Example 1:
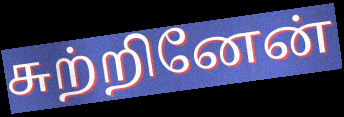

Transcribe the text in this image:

சுற்றினேன்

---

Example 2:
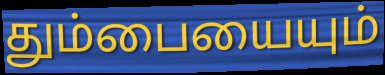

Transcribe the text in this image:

தும்பையையும்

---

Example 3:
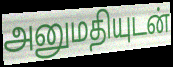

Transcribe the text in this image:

அனுமதியுடன்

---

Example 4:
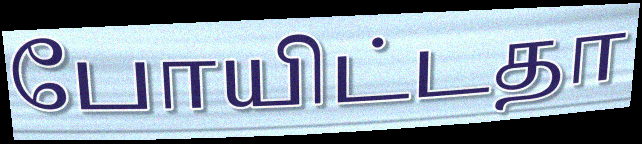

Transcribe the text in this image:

போயிட்டதா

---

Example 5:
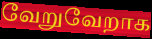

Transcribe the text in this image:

வேறுவேறாக